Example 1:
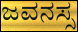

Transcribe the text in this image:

ಜವನಸ್ಸ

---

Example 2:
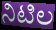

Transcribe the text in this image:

ನಿಟಿಲ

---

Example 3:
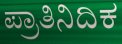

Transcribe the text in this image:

ಪ್ರಾತಿನಿದಿಕ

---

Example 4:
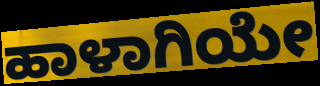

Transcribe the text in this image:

ಹಾಳಾಗಿಯೇ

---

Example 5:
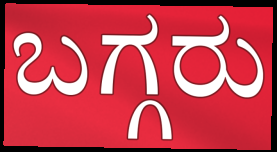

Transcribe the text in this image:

ಬಗ್ಗರು